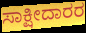
ಸಾಕ್ಷೀದಾರರ